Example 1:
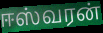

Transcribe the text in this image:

ஈஸ்வரன்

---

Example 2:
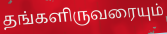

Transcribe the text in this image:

தங்களிருவரையும்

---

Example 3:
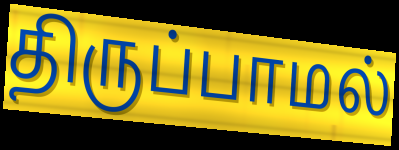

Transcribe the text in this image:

திருப்பாமல்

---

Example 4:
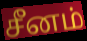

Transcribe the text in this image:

சீனம்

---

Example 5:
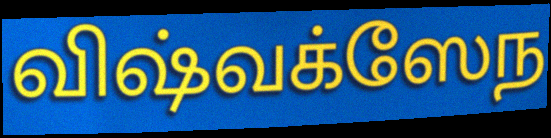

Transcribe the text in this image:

விஷ்வக்ஸேந